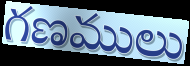
గణములు